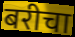
बरीचा